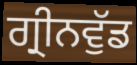
ਗ੍ਰੀਨਵੁੱਡ